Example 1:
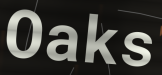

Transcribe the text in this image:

Oaks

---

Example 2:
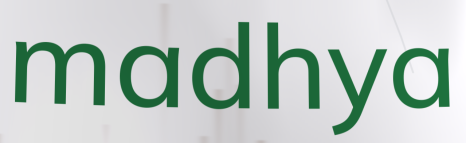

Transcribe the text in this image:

madhya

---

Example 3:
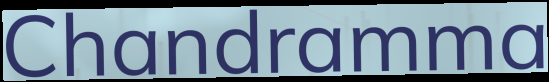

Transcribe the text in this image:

Chandramma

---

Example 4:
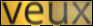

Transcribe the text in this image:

veux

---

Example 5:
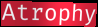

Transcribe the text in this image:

Atrophy